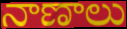
నాణాలు